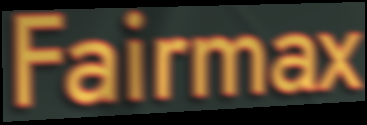
Fairmax